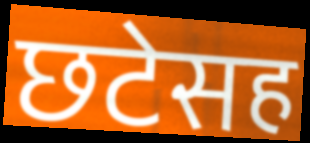
छटेसह